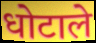
धोटाले